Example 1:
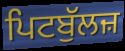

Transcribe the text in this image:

ਪਿਟਬੁੱਲਜ਼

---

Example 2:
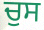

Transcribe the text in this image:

ਚੁਸ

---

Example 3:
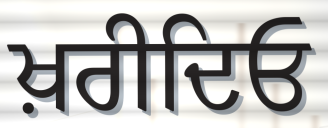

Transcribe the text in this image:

ਖ਼ਰੀਦਿਓ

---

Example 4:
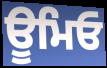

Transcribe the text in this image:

ਊਮਿਓ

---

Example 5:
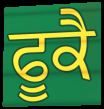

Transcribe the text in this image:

ਫੂਕੈ